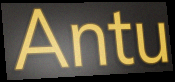
Antu